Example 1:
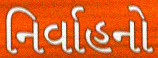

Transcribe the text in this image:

નિર્વાહનો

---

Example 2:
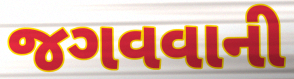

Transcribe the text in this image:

જગવવાની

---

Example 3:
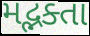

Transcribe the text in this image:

મદ્ભક્તા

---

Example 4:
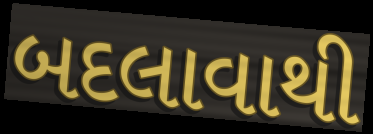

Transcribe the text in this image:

બદલાવાથી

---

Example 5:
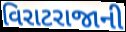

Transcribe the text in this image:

વિરાટરાજાની